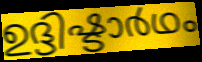
ഉദ്ദിഷ്ടാർഥം